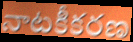
నాటకీకరణ